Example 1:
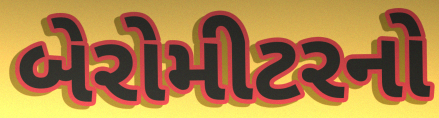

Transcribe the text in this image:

બેરોમીટરનો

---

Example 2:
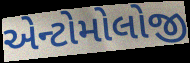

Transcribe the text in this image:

એન્ટોમોલોજી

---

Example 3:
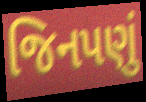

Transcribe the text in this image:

જિનપણું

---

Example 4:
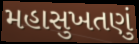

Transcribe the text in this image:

મહાસુખતણું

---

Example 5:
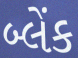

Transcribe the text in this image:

બ્લેંક